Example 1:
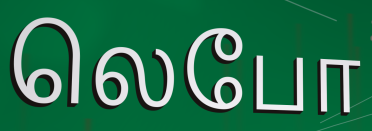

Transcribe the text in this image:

லெபோ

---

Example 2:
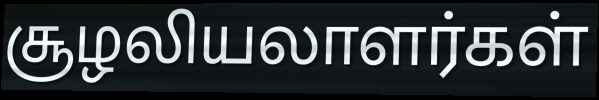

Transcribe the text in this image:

சூழலியலாளர்கள்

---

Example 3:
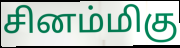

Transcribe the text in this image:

சினம்மிகு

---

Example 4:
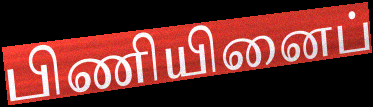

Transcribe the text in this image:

பிணியினைப்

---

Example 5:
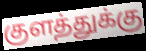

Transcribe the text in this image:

குளத்துக்கு